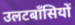
उलटबाँसियों